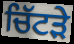
ਚਿੱਟੜੇ